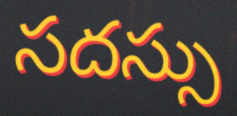
సదస్సు